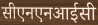
सीएनएनआईसी